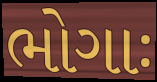
ભોગાઃ